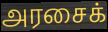
அரசைக்